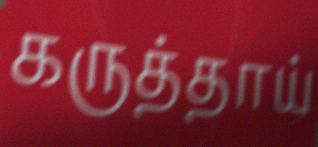
கருத்தாய்